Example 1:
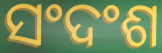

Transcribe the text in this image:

ସଂଦଂଶ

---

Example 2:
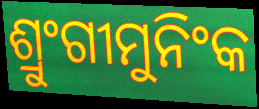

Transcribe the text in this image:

ଶ୍ରୁଂଗୀମୁନିଂକ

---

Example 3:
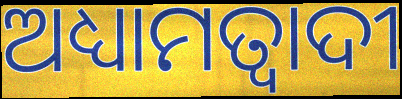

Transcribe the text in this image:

ଅଧ୍ୟାମତ୍ବାଦୀ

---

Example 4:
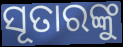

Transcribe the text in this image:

ସୂତାରଙ୍କୁ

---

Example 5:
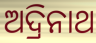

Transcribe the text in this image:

ଅଦ୍ରିନାଥ